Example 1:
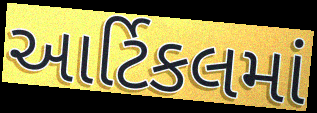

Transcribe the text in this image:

આર્ટિકલમાં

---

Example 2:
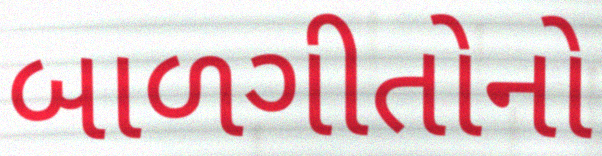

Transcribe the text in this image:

બાળગીતોનો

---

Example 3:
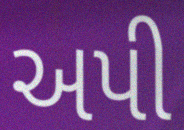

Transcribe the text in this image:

અપી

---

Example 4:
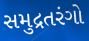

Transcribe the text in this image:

સમુદ્રતરંગો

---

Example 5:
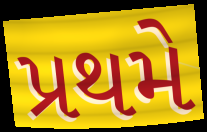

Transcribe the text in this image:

પ્રથમે